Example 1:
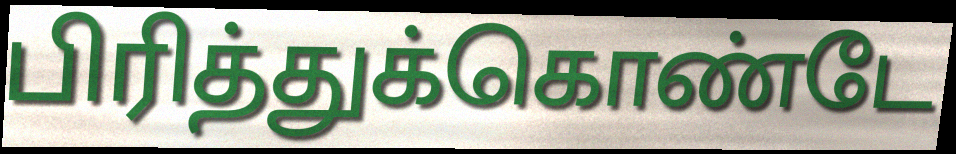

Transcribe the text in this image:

பிரித்துக்கொண்டே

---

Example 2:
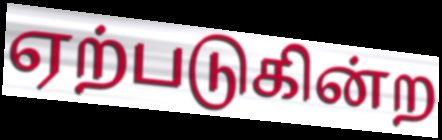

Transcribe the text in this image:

ஏற்படுகின்ற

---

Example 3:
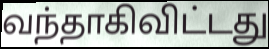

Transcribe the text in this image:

வந்தாகிவிட்டது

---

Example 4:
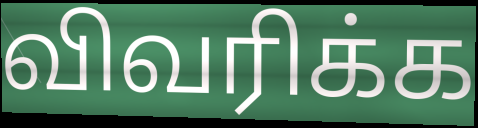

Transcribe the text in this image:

விவரிக்க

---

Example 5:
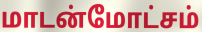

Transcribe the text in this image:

மாடன்மோட்சம்